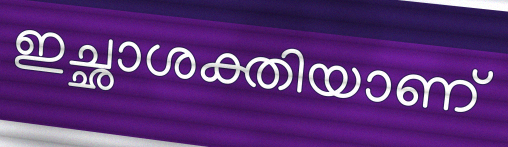
ഇച്ഛാശക്തിയാണ്